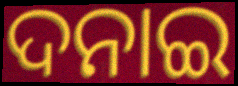
ଦନାଇ